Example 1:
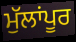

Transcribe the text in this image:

ਮੁੱਲਾਂਪੂਰ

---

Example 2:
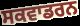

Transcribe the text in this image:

ਸਕਵਾਡਰਨ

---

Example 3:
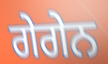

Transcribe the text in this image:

ਗੇਗੇਨ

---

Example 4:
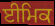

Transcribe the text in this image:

ਈਮਿਕ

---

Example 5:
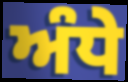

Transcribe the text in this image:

ਅੰਧੇ